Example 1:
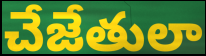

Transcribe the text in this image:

చేజేతులా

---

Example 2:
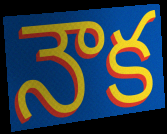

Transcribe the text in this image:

నౌక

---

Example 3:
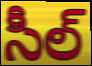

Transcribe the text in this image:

సీల్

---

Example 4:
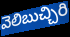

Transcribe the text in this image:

వెలిబుచ్చిరి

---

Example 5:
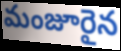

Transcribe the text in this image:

మంజూరైన